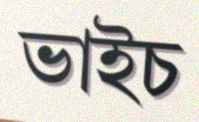
ভাইচ